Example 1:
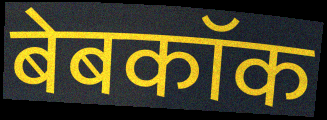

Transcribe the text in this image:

बेबकॉक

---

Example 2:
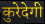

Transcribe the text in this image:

कुरेदेगी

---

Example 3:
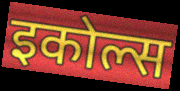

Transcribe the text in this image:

इकोल्स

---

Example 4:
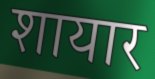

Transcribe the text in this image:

शायार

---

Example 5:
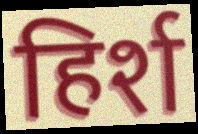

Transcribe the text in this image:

हिर्श